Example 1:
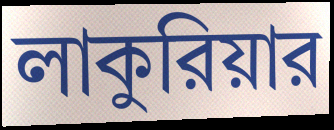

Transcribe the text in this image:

লাকুরিয়ার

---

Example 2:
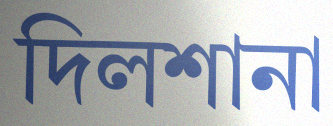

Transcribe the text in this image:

দিলশানা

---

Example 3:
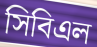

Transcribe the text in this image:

সিবিএল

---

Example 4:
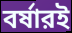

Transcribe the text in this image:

বর্ষারই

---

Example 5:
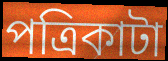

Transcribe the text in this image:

পত্রিকাটা